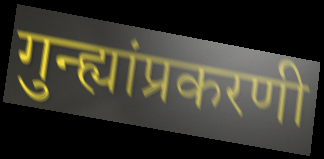
गुन्ह्यांप्रकरणी